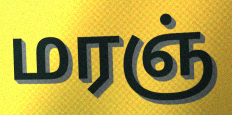
மரஞ்